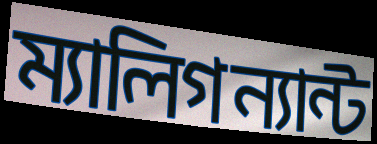
ম্যালিগন্যান্ট